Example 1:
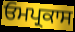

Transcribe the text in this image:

ਓਮਪ੍ਰਕਾਸ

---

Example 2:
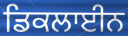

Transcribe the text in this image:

ਡਿਕਲਾਈਨ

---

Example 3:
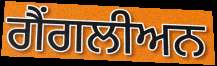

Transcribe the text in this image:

ਗੈਂਗਲੀਅਨ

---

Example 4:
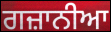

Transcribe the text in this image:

ਗਜ਼ਾਨੀਆ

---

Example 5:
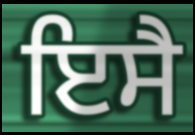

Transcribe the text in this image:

ਇਸੈ